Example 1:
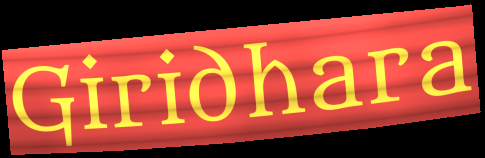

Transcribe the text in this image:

Giridhara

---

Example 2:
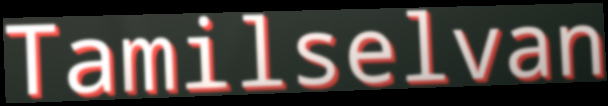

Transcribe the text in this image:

Tamilselvan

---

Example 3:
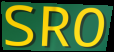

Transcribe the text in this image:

SRO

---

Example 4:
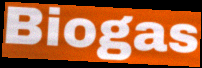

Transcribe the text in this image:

Biogas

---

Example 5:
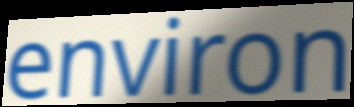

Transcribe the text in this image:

environ